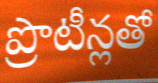
ప్రొటీన్లతో